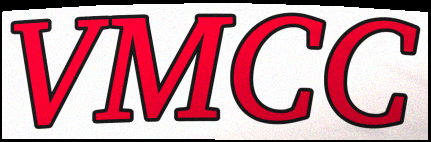
VMCC